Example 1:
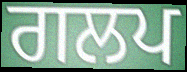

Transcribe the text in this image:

ਗਲਪ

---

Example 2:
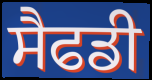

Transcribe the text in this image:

ਸੈਫਡੀ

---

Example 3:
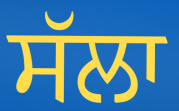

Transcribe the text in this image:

ਸੱਲਾ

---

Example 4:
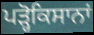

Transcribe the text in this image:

ਪੜ੍ਹੋਕਿਸਾਨਾਂ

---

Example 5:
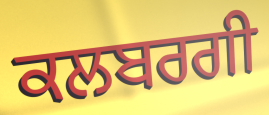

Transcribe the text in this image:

ਕਲਬਰਗੀ